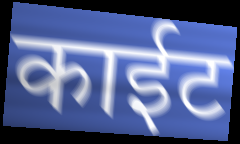
काईट